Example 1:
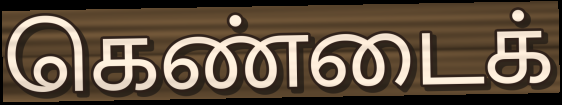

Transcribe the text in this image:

கெண்டைக்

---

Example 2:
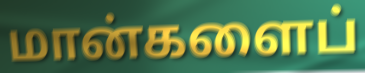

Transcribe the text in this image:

மான்களைப்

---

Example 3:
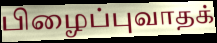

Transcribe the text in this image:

பிழைப்புவாதக்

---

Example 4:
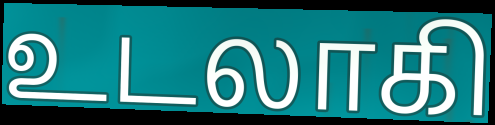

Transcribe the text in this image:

உடலாகி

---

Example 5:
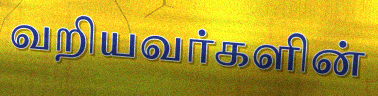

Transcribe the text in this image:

வறியவர்களின்